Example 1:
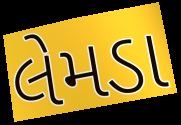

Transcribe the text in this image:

લેમડા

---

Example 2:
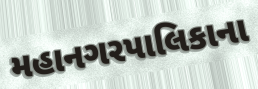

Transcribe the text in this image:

મહાનગરપાલિકાના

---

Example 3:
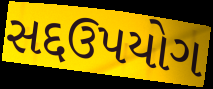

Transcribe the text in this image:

સદ્દઉપયોગ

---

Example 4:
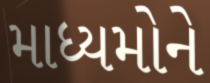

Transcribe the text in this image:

માધ્યમોને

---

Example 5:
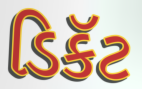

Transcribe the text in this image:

ડિકૅટ